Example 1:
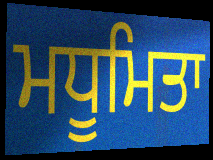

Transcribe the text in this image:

ਮਧੂਮਿਤਾ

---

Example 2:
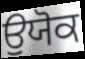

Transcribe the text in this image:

ਉਯੋਕ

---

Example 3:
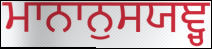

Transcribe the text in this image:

ਮਾਨਾਨੁਸਯਞ੍ਚ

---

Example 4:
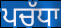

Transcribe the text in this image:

ਪਚੱਧਾ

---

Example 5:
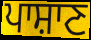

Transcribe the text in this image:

ਪਾਸ਼ਾਣ